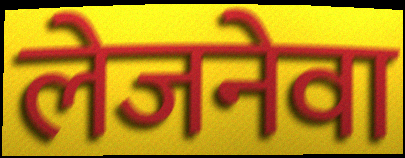
लेजनेवा